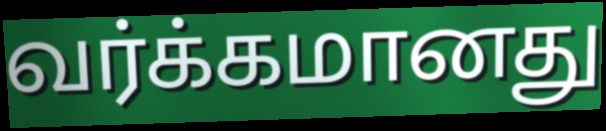
வர்க்கமானது